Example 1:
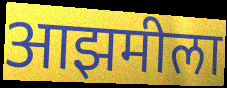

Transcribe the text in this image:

आझमीला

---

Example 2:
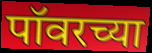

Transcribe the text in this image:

पॉवरच्या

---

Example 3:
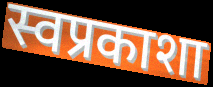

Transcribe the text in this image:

स्वप्रकाशा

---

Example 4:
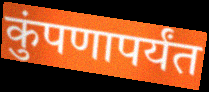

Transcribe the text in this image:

कुंपणापर्यंत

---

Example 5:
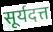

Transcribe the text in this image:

सूर्यदत्त